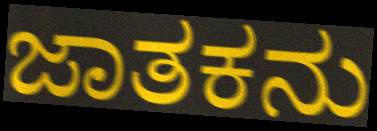
ಜಾತಕನು